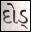
દોડ્